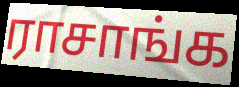
ராசாங்க